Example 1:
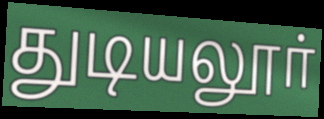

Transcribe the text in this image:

துடியலூர்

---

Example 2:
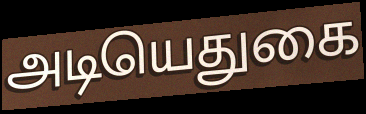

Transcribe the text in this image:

அடியெதுகை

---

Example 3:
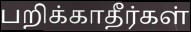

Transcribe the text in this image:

பறிக்காதீர்கள்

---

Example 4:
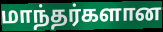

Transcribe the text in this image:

மாந்தர்களான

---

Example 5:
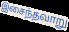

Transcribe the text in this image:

இசைந்தவாறு